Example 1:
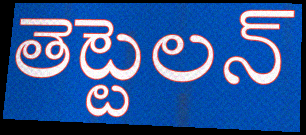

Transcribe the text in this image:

తెట్టెలన్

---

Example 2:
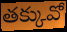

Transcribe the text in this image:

తక్కువో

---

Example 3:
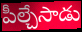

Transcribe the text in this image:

పీల్చేసాడు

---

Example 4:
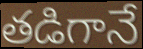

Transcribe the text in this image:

తడిగానే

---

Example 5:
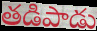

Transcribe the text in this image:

తడిపాడు